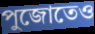
পুজোতেও